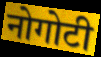
नोगोटी